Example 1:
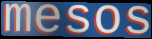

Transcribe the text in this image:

mesos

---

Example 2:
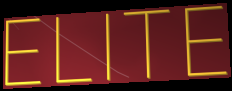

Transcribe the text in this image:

ELITE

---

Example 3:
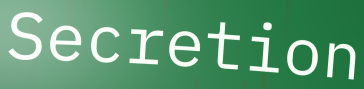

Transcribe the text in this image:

Secretion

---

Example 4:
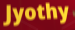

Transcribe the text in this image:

Jyothy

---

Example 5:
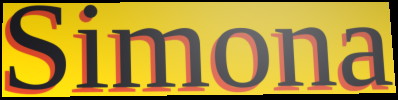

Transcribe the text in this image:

Simona